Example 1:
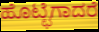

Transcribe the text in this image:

ಹೊಟ್ಟೆಗಾದರೆ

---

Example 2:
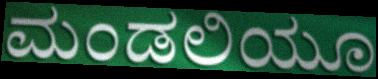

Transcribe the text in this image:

ಮಂಡಲಿಯೂ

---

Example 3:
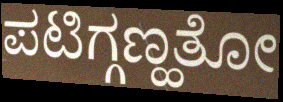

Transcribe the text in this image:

ಪಟಿಗ್ಗಣ್ಹತೋ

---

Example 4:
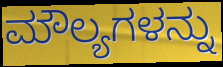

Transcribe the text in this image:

ಮೌಲ್ಯಗಳನ್ನು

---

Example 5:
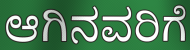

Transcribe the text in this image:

ಆಗಿನವರಿಗೆ